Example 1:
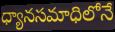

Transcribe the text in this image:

ధ్యానసమాధిలోనే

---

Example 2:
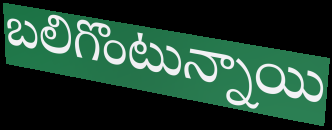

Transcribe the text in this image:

బలిగొంటున్నాయి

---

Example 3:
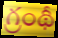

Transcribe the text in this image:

గ్రంథీ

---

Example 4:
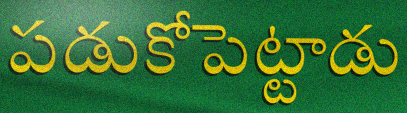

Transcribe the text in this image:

పడుకోపెట్టాడు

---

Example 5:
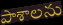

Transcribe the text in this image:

పాశాలను